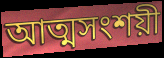
আত্মসংশয়ী